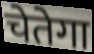
चेतेगा